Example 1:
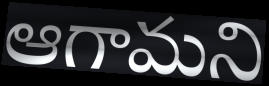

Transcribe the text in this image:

ఆగామని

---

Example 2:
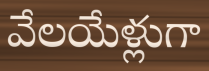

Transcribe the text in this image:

వేలయేళ్లుగా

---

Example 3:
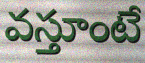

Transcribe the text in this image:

వస్తూంటే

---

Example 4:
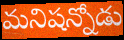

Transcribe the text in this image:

మనిషన్నోడు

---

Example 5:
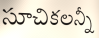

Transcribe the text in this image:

సూచికలన్నీ